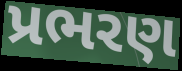
પ્રભરણ